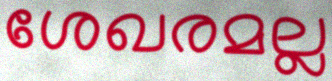
ശേഖരമല്ല